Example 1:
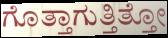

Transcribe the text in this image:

ಗೊತ್ತಾಗುತ್ತಿತ್ತೋ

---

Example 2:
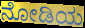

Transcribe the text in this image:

ನೋಡಿಯ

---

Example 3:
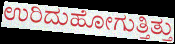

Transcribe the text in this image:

ಉರಿದುಹೋಗುತ್ತಿತ್ತು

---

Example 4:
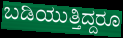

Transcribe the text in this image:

ಬಡಿಯುತ್ತಿದ್ದರೂ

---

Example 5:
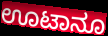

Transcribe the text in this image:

ಊಟಾನೂ